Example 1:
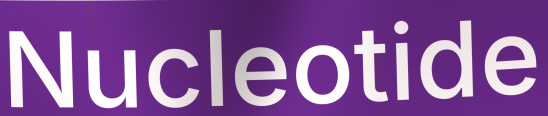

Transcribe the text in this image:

Nucleotide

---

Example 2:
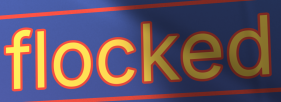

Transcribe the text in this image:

flocked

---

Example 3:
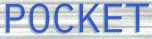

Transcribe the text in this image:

POCKET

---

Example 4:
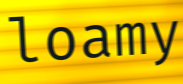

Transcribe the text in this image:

loamy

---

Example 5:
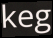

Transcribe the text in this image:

keg